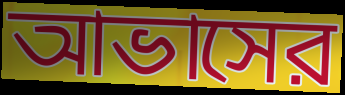
আভাসের